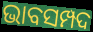
ଭାବସମ୍ପଦ